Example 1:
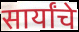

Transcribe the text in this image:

सार्यांचे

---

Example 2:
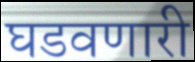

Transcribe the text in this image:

घडवणारी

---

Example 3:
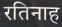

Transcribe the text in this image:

रतिनाह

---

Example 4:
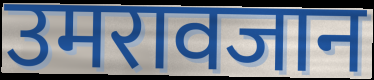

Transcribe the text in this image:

उमरावजान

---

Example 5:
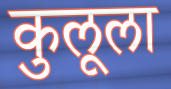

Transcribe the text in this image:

कुलूला